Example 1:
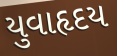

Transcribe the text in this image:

યુવાહૃદય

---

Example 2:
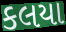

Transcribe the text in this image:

કલયા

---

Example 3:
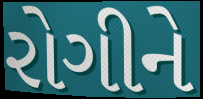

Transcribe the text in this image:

રોગીને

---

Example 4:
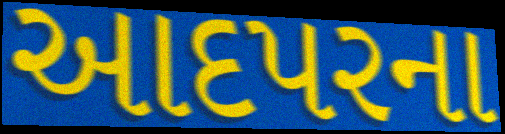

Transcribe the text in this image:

આદપરના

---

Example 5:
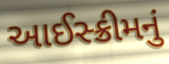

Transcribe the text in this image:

આઈસ્ક્રીમનું